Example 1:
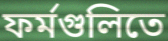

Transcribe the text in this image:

ফর্মগুলিতে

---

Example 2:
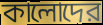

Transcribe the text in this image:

কালোদের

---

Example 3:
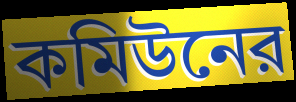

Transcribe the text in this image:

কমিউনের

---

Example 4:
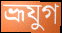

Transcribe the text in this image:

ভ্রূযুগ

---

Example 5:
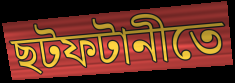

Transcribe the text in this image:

ছটফটানীতে